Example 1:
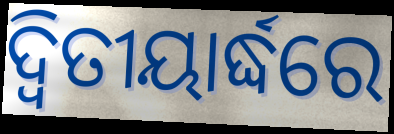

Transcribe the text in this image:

ଦ୍ଵିତୀୟାର୍ଦ୍ଧରେ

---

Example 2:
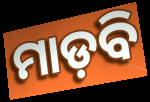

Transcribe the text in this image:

ମାଡ଼ବି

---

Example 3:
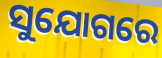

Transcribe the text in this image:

ସୁଯୋଗରେ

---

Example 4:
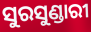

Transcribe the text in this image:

ସୁରସୁଣ୍ଡାରୀ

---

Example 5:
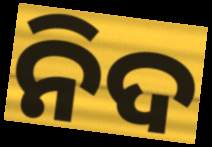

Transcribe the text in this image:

ନିଦ